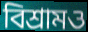
বিশ্রামও